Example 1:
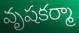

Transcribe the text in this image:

వృషకర్మా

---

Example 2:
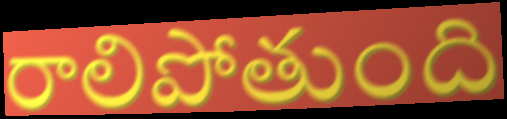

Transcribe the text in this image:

రాలిపోతుంది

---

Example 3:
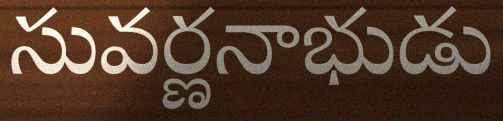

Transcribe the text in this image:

సువర్ణనాభుడు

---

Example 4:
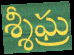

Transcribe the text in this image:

శ్శీఘ్ర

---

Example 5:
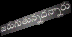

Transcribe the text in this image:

జరుగుతున్నదన్నారు